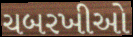
ચબરખીઓ